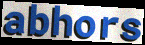
abhors